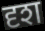
दृश